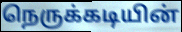
நெருக்கடியின்